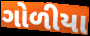
ગોળીયા